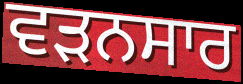
ਵੜਨਸਾਰ